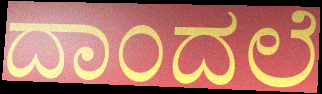
ದಾಂದಲೆ